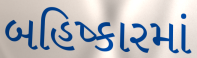
બહિષ્કારમાં